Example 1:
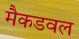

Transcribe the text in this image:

मैकडवल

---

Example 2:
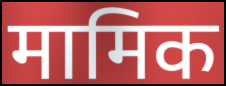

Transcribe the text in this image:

मामिक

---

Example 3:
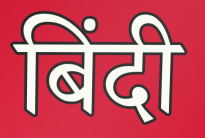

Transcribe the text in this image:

बिंदी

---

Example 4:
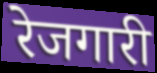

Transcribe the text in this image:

रेजगारी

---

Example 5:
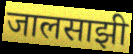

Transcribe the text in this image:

जालसाझी